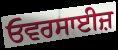
ਓਵਰਸਾਈਜ਼